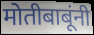
मोतीबाबूंनी